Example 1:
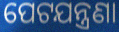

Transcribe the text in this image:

ପେଟଯନ୍ତ୍ରଣା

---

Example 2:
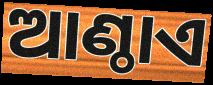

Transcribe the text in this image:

ଆଣ୍ଠାଏ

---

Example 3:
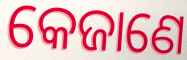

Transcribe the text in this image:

କେଜାଣେ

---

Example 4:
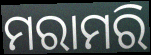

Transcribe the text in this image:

ମରାମରି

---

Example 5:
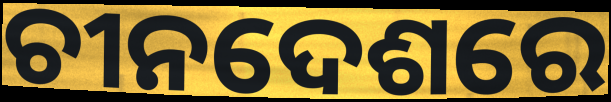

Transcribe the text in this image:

ଚୀନଦେଶରେ